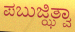
ಪಬುಜ್ಝಿತ್ವಾ